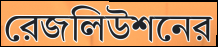
রেজলিউশনের